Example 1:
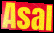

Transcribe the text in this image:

Asal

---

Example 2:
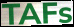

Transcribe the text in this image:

TAFs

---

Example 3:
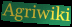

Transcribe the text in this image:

Agriwiki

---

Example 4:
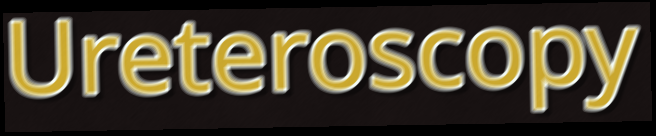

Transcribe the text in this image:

Ureteroscopy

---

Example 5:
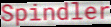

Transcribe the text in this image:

Spindler